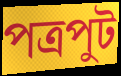
পত্রপুট